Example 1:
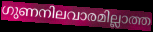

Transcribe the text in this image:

ഗുണനിലവാരമില്ലാത്ത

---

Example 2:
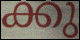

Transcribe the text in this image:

ക്കു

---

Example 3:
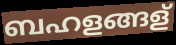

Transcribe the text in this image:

ബഹളങ്ങള്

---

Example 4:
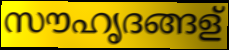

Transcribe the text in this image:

സൗഹൃദങ്ങള്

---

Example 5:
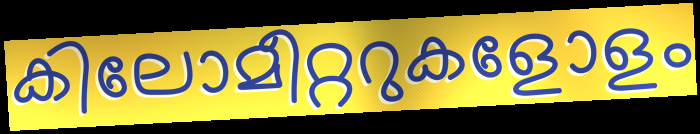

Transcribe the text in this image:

കിലോമീറ്ററുകളോളം